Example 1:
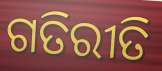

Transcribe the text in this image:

ଗତିରୀତି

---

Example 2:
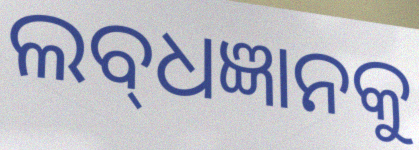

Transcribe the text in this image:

ଲବ୍‌ଧଜ୍ଞାନକୁ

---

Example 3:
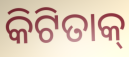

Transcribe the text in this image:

କିଟିତାକ୍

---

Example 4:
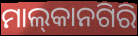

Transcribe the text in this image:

ମାଲ୍‌କାନଗିରି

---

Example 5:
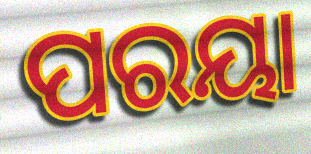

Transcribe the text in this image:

ପରୟା